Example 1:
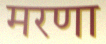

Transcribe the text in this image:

मरणा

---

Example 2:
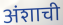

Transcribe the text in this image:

अंशाची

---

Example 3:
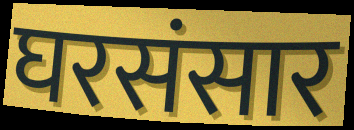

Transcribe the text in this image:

घरसंसार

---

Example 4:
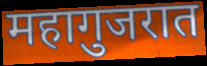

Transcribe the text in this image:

महागुजरात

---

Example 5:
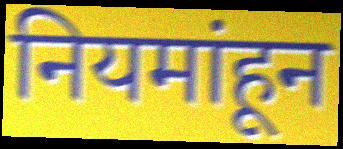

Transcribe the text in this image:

नियमांहून